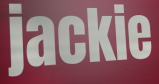
jackie